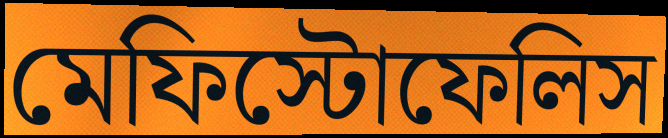
মেফিস্টোফেলিস